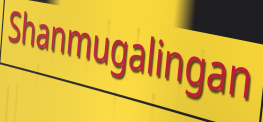
Shanmugalingan